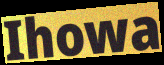
Ihowa